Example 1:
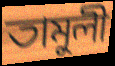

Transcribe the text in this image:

তামুলী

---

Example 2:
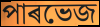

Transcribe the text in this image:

পাৰভেজ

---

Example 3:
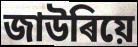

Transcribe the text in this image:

জাউৰিয়ে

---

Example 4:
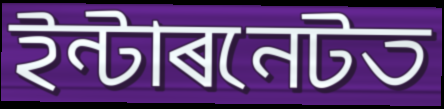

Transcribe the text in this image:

ইন্টাৰনেটত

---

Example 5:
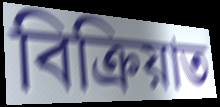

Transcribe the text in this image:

বিক্ৰিয়াত